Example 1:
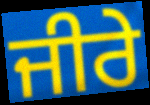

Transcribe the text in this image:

ਜੀਰੇ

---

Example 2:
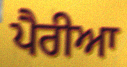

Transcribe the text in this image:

ਪੈਰੀਆ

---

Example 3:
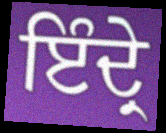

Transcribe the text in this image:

ਇੰਦ੍ਰੇ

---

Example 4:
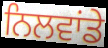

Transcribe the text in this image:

ਨਿਲਵਾਂਡੇ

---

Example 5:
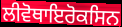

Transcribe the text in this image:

ਲੀਵੋਥਾਇਰੋਕਸਿਨ